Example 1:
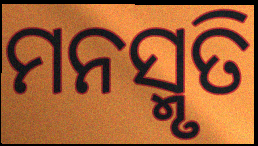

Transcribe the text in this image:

ମନସ୍ମୃତି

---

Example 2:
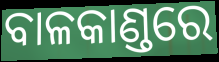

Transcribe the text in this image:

ବାଳକାଣ୍ଡରେ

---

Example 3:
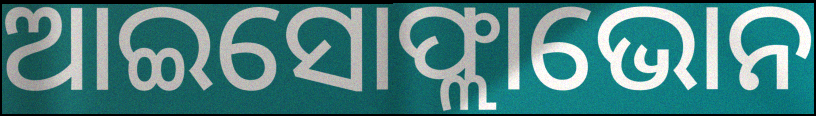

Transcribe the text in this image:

ଆଇସୋଫ୍ଲାଭୋନ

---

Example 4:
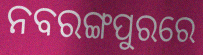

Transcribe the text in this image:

ନବରଙ୍ଗପୁରରେ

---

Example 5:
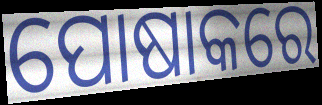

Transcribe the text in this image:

ପୋଷାକରେ